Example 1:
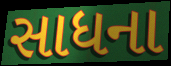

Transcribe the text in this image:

સાધના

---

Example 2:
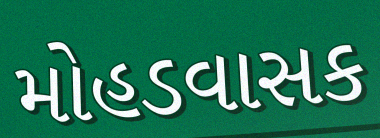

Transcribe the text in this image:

મોહડવાસક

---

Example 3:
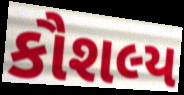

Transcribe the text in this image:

કૌશલ્ય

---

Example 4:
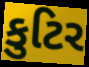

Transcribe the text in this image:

કુટિર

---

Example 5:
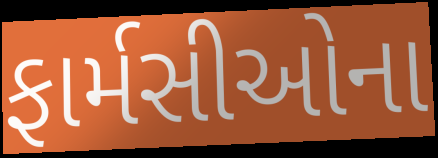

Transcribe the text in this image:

ફાર્મસીઓના